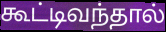
கூட்டிவந்தால்